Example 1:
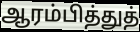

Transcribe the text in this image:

ஆரம்பித்துத்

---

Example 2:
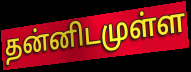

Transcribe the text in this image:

தன்னிடமுள்ள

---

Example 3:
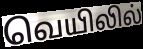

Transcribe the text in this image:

வெயிலில்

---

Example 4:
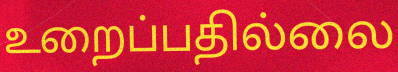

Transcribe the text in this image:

உறைப்பதில்லை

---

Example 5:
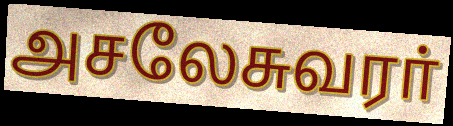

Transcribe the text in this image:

அசலேசுவரர்